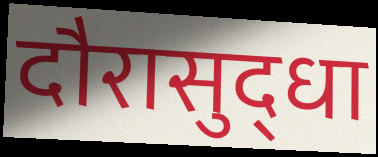
दौरासुद्धा